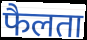
फैलता